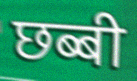
छब्बी